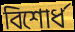
বিশোর্ধ